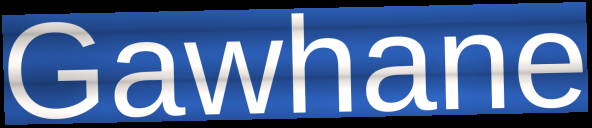
Gawhane